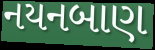
નયનબાણ